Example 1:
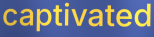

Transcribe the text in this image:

captivated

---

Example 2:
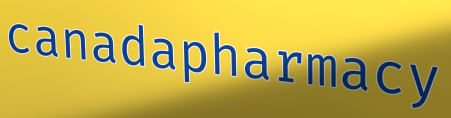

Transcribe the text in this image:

canadapharmacy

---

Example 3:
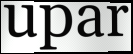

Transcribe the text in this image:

upar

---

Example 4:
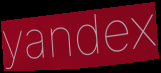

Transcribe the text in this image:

yandex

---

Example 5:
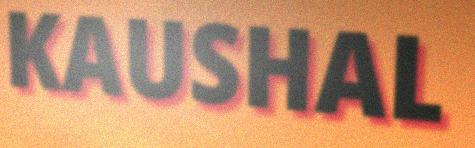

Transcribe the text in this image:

KAUSHAL